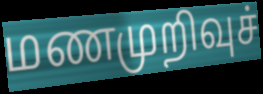
மணமுறிவுச்